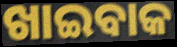
ଖାଇବାକ